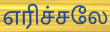
எரிச்சலே